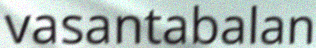
vasantabalan